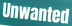
Unwanted